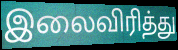
இலைவிரித்து